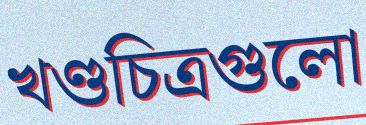
খণ্ডচিত্রগুলো